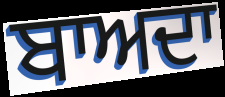
ਬਾਅਦਾ